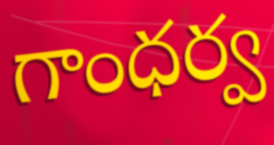
గాంధర్వ